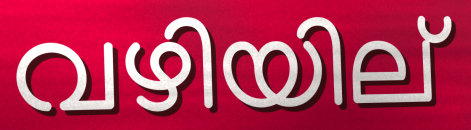
വഴിയില്